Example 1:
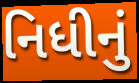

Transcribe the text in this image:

નિધીનું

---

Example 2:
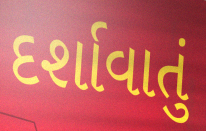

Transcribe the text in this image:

દર્શાવાતું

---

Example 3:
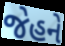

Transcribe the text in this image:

જેહને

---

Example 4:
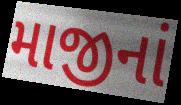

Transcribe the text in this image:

માજીનાં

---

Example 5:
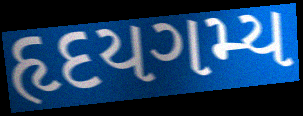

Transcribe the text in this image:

હૃદયગમ્ય